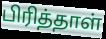
பிரித்தாள்